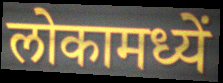
लोकामध्यें